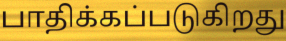
பாதிக்கப்படுகிறது